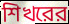
শিখরের